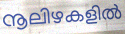
നൂലിഴകളിൽ